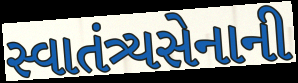
સ્વાતંત્ર્યસેનાની